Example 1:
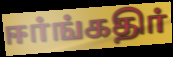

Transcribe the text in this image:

ஈர்ங்கதிர்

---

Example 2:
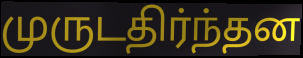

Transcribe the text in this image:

முருடதிர்ந்தன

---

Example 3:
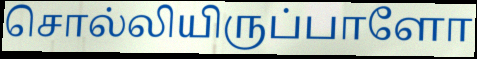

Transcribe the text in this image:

சொல்லியிருப்பாளோ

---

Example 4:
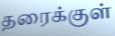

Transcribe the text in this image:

தரைக்குள்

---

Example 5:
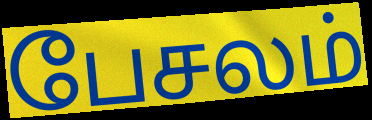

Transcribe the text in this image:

பேசலம்